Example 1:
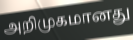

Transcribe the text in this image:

அறிமுகமானது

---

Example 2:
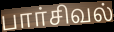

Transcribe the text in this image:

பார்சிவல்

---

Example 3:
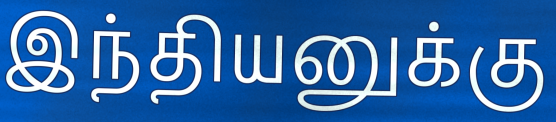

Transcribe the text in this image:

இந்தியனுக்கு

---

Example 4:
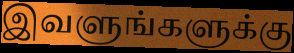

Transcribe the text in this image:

இவளுங்களுக்கு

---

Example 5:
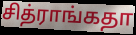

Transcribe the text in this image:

சித்ராங்கதா